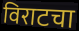
विराटचा